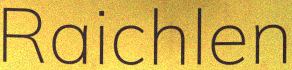
Raichlen